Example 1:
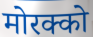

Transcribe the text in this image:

मोरक्को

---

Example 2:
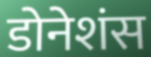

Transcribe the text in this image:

डोनेशंस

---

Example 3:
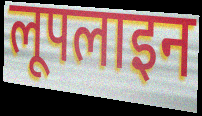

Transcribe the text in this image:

लूपलाइन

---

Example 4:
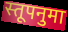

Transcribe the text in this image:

स्तूपनुमा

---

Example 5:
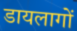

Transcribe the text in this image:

डायलागों